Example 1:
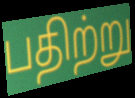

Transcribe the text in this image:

பதிற்று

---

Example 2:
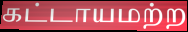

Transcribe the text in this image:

கட்டாயமற்ற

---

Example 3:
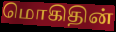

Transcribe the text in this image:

மொகிதின்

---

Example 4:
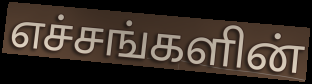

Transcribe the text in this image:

எச்சங்களின்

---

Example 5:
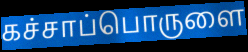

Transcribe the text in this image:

கச்சாப்பொருளை